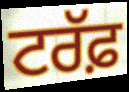
ਟਰੱਫ਼